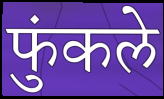
फुंकले